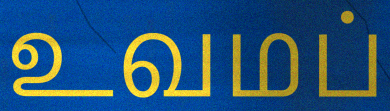
உவமப்